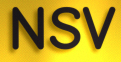
NSV